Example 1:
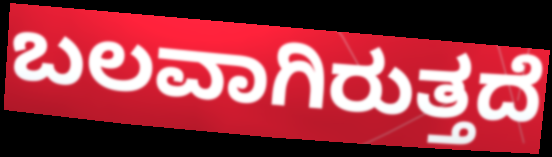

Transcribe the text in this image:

ಬಲವಾಗಿರುತ್ತದೆ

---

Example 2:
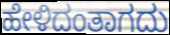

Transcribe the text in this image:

ಹೇಳಿದಂತಾಗದು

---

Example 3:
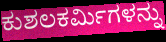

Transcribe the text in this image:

ಕುಶಲಕರ್ಮಿಗಳನ್ನು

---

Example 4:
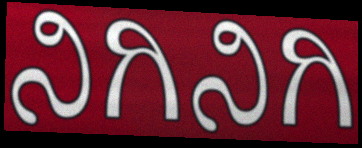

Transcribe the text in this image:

ನಿಗಿನಿಗಿ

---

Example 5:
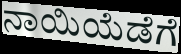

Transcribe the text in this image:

ನಾಯಿಯೆಡೆಗೆ